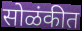
सोळंकीत